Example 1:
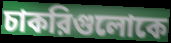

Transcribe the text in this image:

চাকরিগুলোকে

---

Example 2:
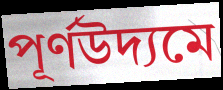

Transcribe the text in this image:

পূর্ণউদ্যমে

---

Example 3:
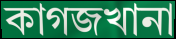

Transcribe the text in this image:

কাগজখানা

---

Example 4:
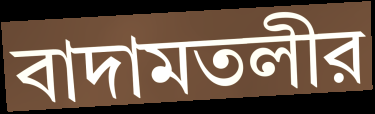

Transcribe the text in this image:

বাদামতলীর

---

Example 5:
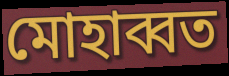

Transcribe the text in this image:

মোহাব্বত